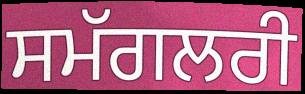
ਸਮੱਗਲਰੀ